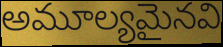
అమూల్యమైనవి